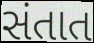
સંતાત